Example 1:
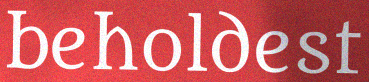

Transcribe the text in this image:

beholdest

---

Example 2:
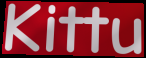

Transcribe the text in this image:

Kittu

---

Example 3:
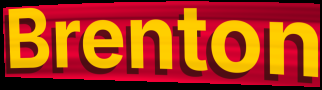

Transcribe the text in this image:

Brenton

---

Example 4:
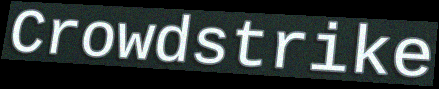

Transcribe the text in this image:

Crowdstrike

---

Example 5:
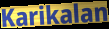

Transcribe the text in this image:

Karikalan